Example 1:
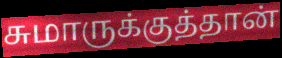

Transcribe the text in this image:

சுமாருக்குத்தான்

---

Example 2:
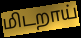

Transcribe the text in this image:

மிடறாய்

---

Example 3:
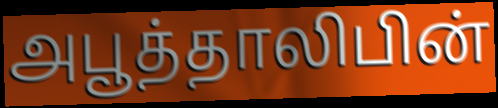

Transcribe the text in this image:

அபூத்தாலிபின்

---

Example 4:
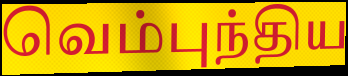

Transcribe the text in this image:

வெம்புந்திய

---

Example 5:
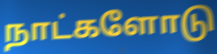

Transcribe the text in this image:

நாட்களோடு